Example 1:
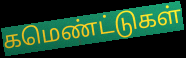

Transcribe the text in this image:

கமெண்ட்டுகள்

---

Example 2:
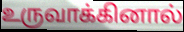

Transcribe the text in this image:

உருவாக்கினால்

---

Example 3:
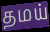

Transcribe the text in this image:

தமய்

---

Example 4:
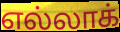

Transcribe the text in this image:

எல்லாக்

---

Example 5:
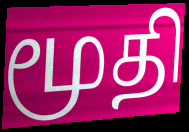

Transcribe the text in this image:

மூதி